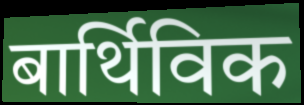
बार्थिविक